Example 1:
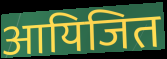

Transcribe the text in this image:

आयिजित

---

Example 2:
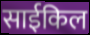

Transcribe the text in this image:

साईकिल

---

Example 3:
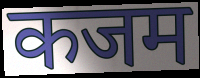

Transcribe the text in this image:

कजम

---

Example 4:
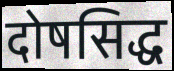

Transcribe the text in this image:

दोषसिद्ध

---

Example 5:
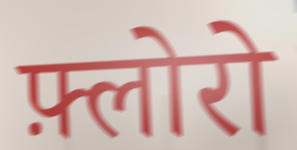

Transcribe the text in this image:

फ़्लोरो